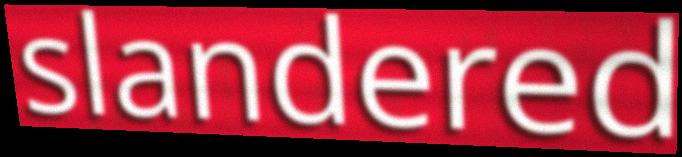
slandered